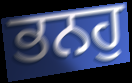
ਭਨਹੁ